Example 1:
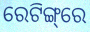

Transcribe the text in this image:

ରେଟିଙ୍ଗ୍‌ରେ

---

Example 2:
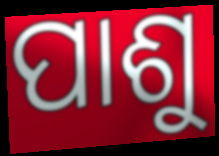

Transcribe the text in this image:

ପାଶୁ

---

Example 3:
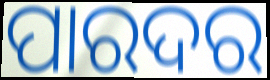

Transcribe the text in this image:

ପାରଦର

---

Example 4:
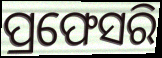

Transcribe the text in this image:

ପ୍ରଫେସରି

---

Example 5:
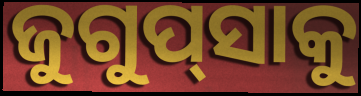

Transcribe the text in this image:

ଜୁଗୁପ୍‍ସାକୁ